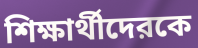
শিক্ষার্থীদেরকে